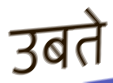
उबते